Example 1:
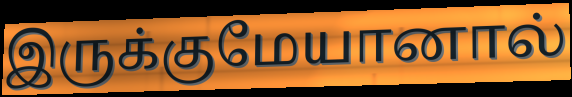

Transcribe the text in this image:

இருக்குமேயானால்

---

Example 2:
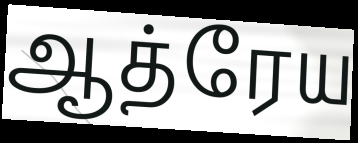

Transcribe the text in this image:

ஆத்ரேய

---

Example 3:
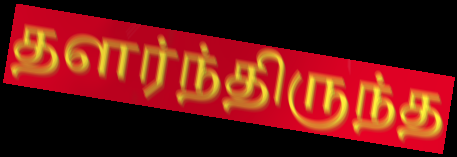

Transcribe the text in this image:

தளர்ந்திருந்த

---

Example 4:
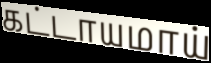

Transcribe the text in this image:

கட்டாயமாய்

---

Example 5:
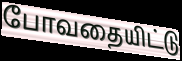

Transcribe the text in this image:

போவதையிட்டு